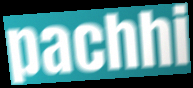
pachhi